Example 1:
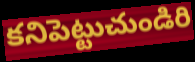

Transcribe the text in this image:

కనిపెట్టుచుండిరి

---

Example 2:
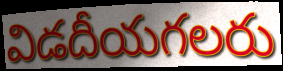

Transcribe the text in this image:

విడదీయగలరు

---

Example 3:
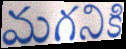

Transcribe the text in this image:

మగనికి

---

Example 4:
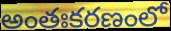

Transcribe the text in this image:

అంతఃకరణంలో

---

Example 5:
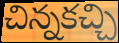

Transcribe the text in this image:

చిన్నకచ్చి